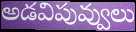
అడవిపువ్వులు